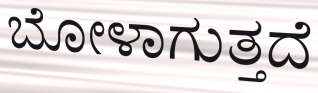
ಬೋಳಾಗುತ್ತದೆ